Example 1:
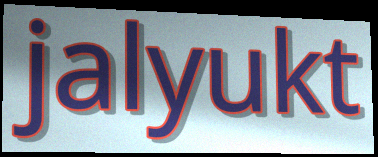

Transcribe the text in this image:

jalyukt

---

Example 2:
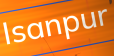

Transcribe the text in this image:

Isanpur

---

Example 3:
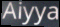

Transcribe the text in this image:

Aiyya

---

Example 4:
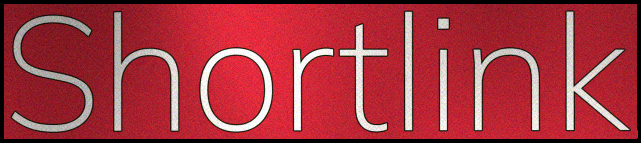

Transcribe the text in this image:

Shortlink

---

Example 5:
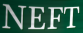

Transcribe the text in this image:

NEFT